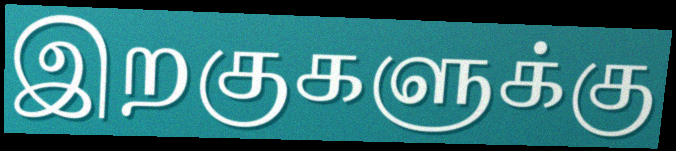
இறகுகளுக்கு